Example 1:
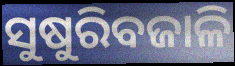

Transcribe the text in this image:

ସୁଷୁରିବଜାଳି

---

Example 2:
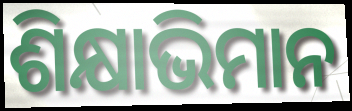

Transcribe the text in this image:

ଶିକ୍ଷାଭିମାନ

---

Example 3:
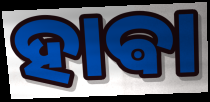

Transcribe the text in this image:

ହାଵା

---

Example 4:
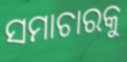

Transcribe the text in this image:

ସମାଚାରକୁ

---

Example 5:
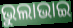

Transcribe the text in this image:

ଭୁଲାଭାଇ